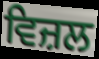
ਵਿਜ਼ਲ